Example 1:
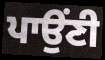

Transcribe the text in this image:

ਪਾਉਂਣੀ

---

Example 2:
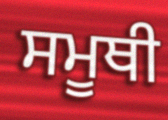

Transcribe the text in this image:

ਸਮੂਥੀ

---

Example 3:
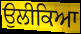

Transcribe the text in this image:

ਉਲੀਕਿਆ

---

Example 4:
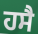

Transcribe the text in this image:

ਹਸੈ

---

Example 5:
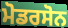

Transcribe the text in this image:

ਮੋਡਰਸੋਨ